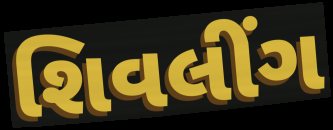
શિવલીંગ